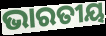
ଭାରତୀୟ